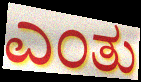
ಎಂತು